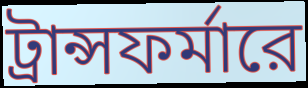
ট্রান্সফর্মারে